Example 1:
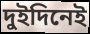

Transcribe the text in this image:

দুইদিনেই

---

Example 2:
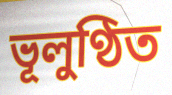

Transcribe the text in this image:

ভূলুণ্ঠিত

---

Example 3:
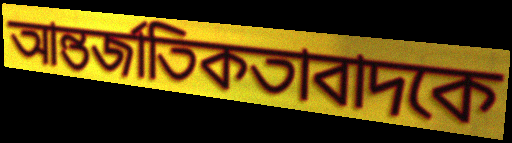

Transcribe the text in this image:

আন্তর্জাতিকতাবাদকে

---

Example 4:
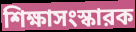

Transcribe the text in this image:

শিক্ষাসংস্কারক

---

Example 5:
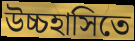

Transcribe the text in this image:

উচ্চহাসিতে